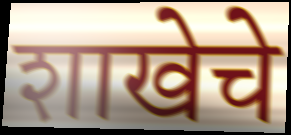
शाखेचे